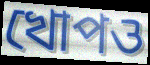
খোপও